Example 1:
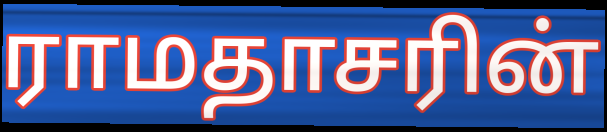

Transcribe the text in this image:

ராமதாசரின்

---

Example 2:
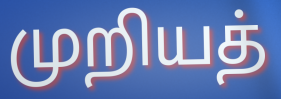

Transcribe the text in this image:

முறியத்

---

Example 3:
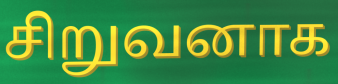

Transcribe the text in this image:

சிறுவனாக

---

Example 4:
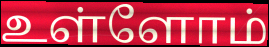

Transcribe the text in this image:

உள்ளோம்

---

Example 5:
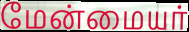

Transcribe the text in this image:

மேன்மையர்